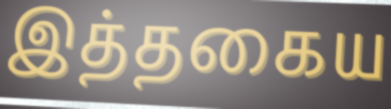
இத்தகைய